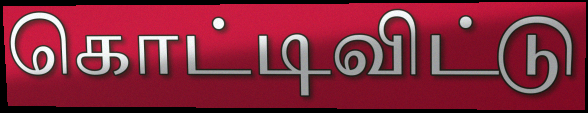
கொட்டிவிட்டு